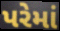
પરેમાં